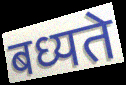
बध्यते